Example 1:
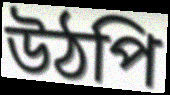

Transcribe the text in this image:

উঠপি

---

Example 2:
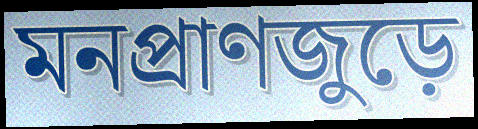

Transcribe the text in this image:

মনপ্রাণজুড়ে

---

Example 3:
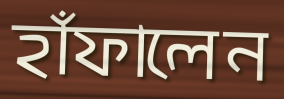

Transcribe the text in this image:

হাঁফালেন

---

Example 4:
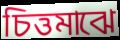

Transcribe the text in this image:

চিত্তমাঝে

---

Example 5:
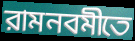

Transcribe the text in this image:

রামনবমীতে